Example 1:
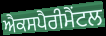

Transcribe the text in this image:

ਐਕਸਪੈਰੀਮੈਂਟਲ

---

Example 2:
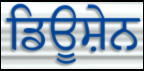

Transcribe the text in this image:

ਡਿਊਸ਼ੇਨ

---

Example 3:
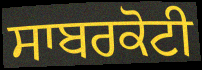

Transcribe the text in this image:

ਸਾਬਰਕੋਟੀ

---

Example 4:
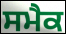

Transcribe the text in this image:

ਸਮੈਕ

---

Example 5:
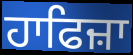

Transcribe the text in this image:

ਹਾਫਿਜ਼ਾ